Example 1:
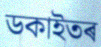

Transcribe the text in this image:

ডকাইতৰ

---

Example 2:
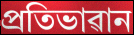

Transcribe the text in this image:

প্ৰতিভাৱান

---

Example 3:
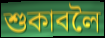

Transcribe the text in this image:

শুকাবলৈ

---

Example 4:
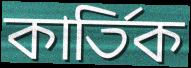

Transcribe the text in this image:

কাৰ্তিক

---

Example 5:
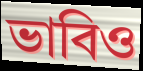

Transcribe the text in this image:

ভাবিও